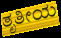
ತೃತೀಯ